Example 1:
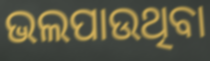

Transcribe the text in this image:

ଭଲପାଉଥିବା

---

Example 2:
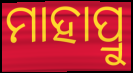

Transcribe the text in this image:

ମାହାପ୍ରୁ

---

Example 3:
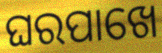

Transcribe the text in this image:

ଘରପାଖେ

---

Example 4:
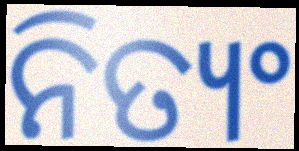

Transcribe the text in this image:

ନିତ୍ୟଂ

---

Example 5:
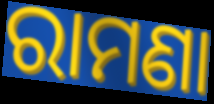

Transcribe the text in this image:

ରାମଣା